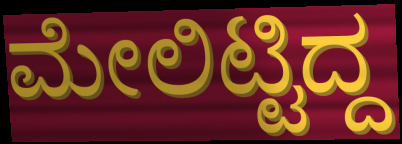
ಮೇಲಿಟ್ಟಿದ್ದ